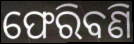
ଫେରିବଣି